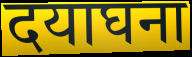
दयाघना